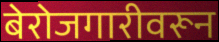
बेरोजगारीवरून